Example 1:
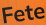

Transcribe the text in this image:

Fete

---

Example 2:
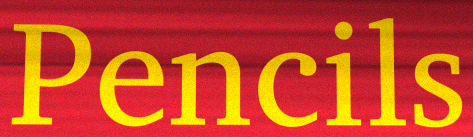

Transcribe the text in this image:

Pencils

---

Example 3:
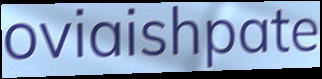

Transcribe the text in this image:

oviaishpate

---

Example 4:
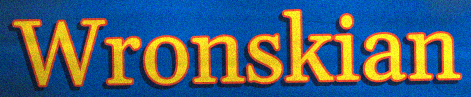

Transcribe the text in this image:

Wronskian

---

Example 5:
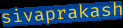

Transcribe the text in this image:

sivaprakash